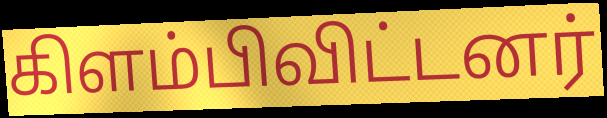
கிளம்பிவிட்டனர்